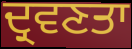
ਦ੍ਰਵਣਤਾ